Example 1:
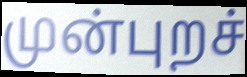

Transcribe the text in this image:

முன்புறச்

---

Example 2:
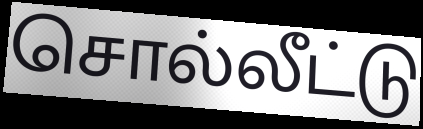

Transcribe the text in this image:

சொல்லீட்டு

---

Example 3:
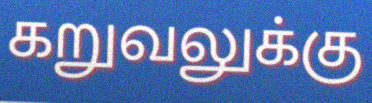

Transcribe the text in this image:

கறுவலுக்கு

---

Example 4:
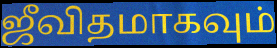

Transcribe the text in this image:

ஜீவிதமாகவும்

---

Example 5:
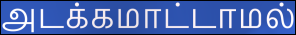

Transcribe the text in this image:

அடக்கமாட்டாமல்